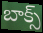
బాక్స్